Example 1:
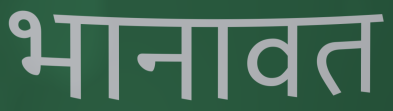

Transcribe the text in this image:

भानावत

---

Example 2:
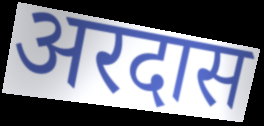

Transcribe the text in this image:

अरदास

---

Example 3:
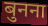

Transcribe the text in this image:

बुनना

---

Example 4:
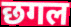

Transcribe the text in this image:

छगल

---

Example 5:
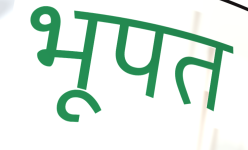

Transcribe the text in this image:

भूपत